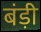
बंड़ी